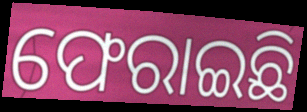
ଫେରାଇଛି